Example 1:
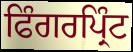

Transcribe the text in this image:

ਫਿੰਗਰਪ੍ਰਿੰਟ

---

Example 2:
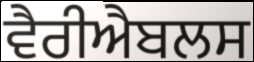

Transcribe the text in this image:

ਵੈਰੀਐਬਲਸ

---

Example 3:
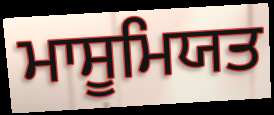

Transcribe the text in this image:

ਮਾਸੂਮਿਯਤ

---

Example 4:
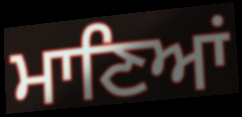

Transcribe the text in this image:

ਮਾਣਿਆਂ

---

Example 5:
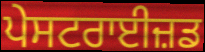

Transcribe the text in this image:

ਪੇਸਟਰਾਈਜ਼ਡ